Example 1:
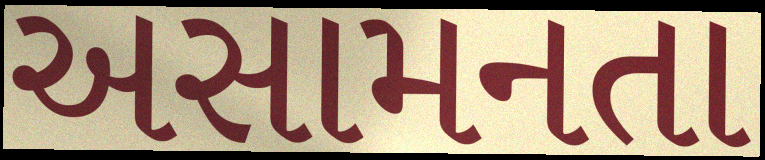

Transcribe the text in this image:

અસામનતા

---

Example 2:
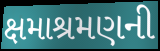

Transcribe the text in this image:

ક્ષમાશ્રમણની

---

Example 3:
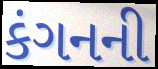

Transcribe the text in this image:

કંગનની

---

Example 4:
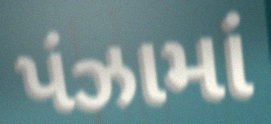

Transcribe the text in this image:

પંઝામાં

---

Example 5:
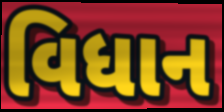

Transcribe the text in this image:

વિધાન